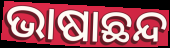
ଭାଷାଛନ୍ଦ